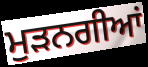
ਮੁੜਨਗੀਆਂ